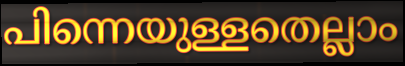
പിന്നെയുള്ളതെല്ലാം